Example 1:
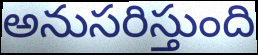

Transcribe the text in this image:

అనుసరిస్తుంది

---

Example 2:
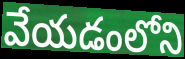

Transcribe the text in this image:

వేయడంలోని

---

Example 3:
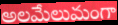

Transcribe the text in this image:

అలమేలుమంగా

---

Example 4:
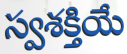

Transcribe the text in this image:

స్వశక్తియే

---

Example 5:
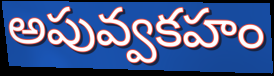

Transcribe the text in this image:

అపువ్వకహం